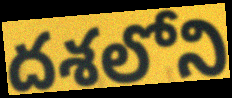
దశలోని